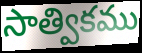
సాత్వికము